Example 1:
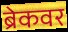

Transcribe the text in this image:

ब्रेकवर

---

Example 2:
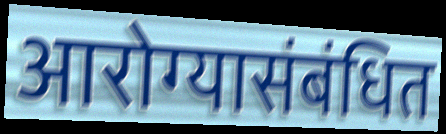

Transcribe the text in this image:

आरोग्यासंबंधित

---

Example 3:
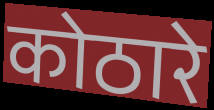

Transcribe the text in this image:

कोठारे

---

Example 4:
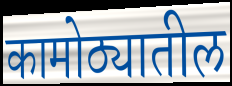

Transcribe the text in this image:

कामोठ्यातील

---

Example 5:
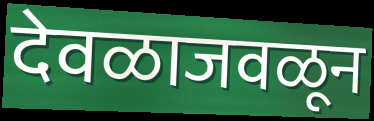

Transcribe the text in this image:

देवळाजवळून